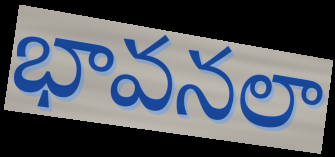
భావనలా